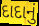
દાદાનું